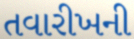
તવારીખની